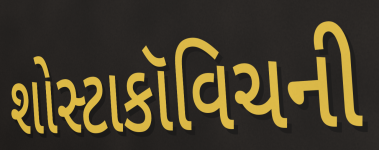
શોસ્ટાકૉવિચની